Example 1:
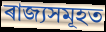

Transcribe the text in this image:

ৰাজ্যসমূহত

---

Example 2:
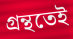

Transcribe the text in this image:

গ্ৰন্থতেই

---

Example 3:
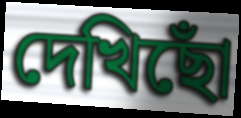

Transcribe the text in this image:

দেখিছোঁ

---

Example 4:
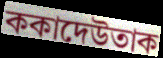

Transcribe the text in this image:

ককাদেউতাক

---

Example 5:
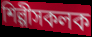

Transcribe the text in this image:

শিল্পীসকলক